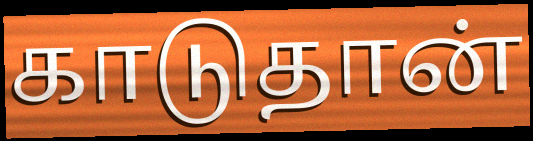
காடுதான்